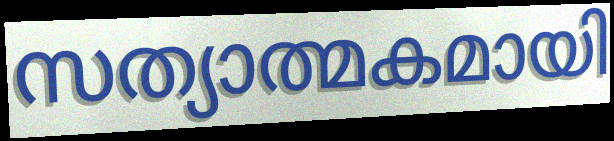
സത്യാത്മകമായി